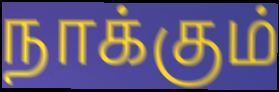
நாக்கும்